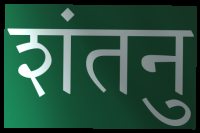
शंतनु